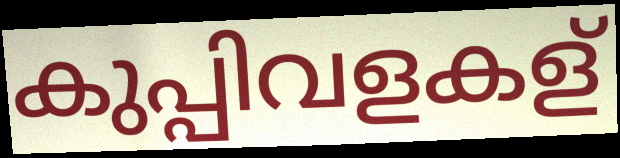
കുപ്പിവളകള്